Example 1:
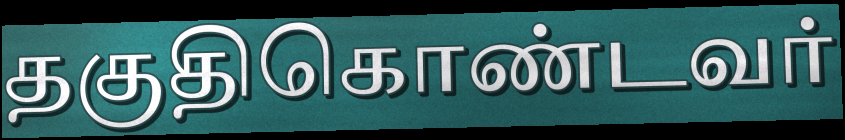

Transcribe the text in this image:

தகுதிகொண்டவர்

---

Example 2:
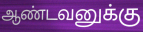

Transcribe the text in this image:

ஆண்டவனுக்கு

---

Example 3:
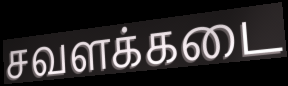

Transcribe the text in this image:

சவளக்கடை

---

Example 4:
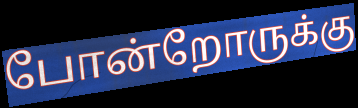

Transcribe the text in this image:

போன்றோருக்கு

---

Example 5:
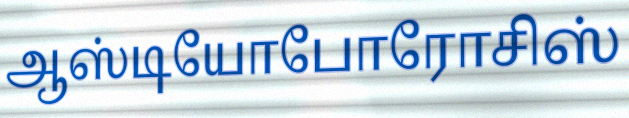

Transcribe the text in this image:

ஆஸ்டியோபோரோசிஸ்